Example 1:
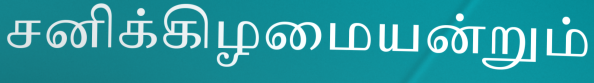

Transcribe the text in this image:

சனிக்கிழமையன்றும்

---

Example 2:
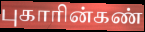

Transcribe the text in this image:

புகாரின்கண்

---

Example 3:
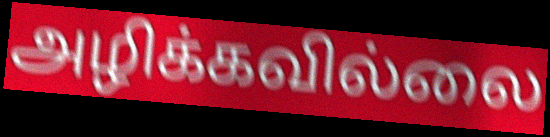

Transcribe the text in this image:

அழிக்கவில்லை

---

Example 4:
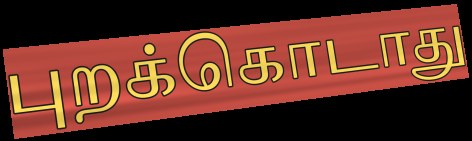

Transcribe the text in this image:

புறக்கொடாது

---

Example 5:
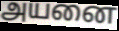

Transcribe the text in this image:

அயனை